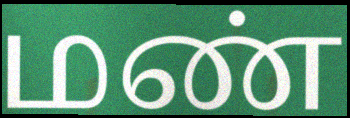
மண்